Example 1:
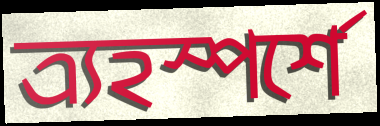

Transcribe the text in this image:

ত্র্যহস্পর্শে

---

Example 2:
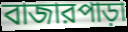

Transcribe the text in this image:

বাজারপাড়া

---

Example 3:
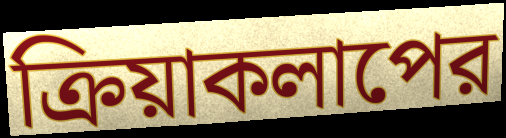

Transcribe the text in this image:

ক্রিয়াকলাপের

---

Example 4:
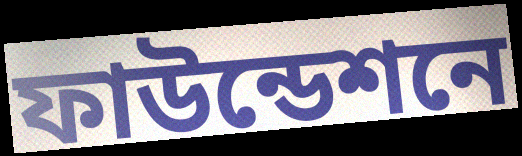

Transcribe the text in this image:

ফাউন্ডেশনে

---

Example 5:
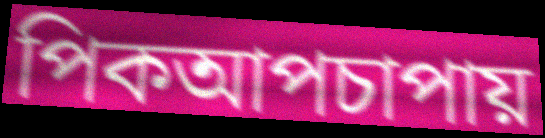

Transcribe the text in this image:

পিকআপচাপায়